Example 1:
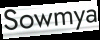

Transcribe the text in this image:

Sowmya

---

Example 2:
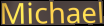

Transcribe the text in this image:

Michael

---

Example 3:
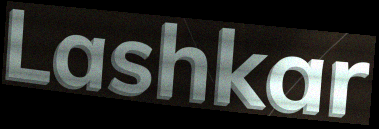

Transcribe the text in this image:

Lashkar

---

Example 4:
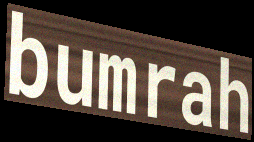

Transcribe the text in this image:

bumrah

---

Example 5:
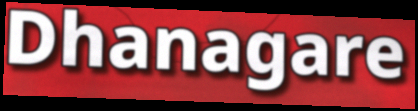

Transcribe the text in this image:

Dhanagare